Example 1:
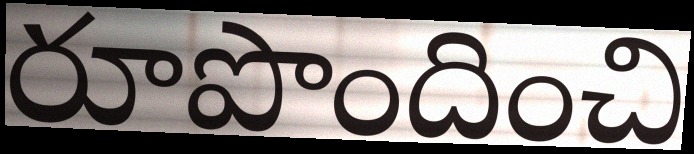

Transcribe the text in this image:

రూపొందించి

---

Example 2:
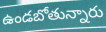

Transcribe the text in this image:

ఉండబోతున్నారు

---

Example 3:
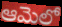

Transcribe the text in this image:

ఆమెలో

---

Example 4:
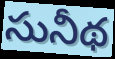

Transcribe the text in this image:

సునీథ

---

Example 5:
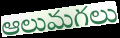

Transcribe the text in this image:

ఆలుమగలు